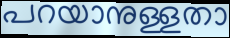
പറയാനുള്ളതാ